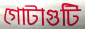
গোটাগুটি